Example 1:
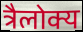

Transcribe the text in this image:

त्रैलोक्य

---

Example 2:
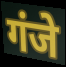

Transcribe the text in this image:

गंजे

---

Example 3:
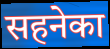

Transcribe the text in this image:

सहनेका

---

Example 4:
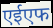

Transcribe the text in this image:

एईएफ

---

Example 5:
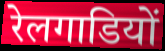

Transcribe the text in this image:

रेलगाडियों